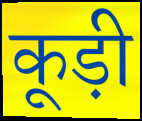
कूड़ी